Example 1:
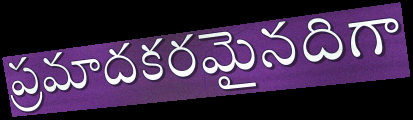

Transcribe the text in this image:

ప్రమాదకరమైనదిగా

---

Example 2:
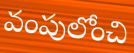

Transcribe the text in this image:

వంపులోంచి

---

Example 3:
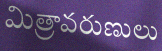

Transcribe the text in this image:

మిత్రావరుణులు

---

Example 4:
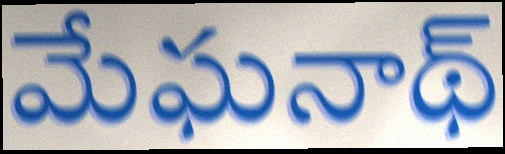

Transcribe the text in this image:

మేఘనాథ్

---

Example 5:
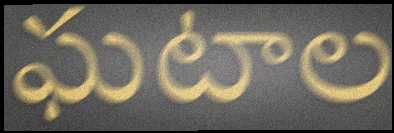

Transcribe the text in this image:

ఘటాల